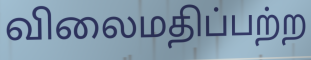
விலைமதிப்பற்ற